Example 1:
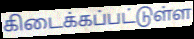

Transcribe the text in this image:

கிடைக்கப்பட்டுள்ள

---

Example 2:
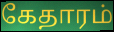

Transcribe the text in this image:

கேதாரம்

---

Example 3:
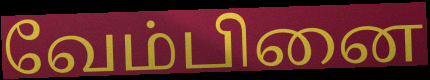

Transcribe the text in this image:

வேம்பினை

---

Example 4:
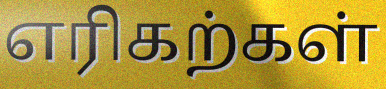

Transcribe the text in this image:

எரிகற்கள்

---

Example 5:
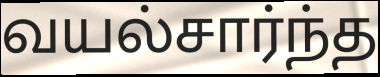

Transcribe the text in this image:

வயல்சார்ந்த